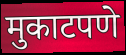
मुकाटपणे